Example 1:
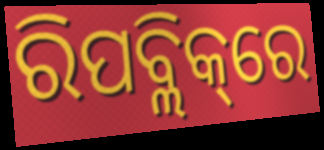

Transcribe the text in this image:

ରିପବ୍ଲିକ୍‌ରେ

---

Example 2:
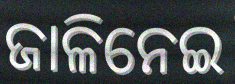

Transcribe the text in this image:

ଜାଳିନେଇ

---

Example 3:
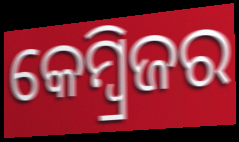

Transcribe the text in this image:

କେମ୍ବ୍ରିଜର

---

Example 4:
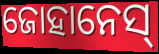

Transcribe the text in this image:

ଜୋହାନେସ୍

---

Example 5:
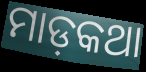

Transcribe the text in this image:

ମାଡ଼କଥା